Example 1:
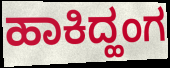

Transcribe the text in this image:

ಹಾಕಿದ್ಹಂಗ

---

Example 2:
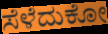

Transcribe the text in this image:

ಸೆಳೆದುಕೋ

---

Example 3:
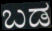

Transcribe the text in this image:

ಬಡ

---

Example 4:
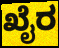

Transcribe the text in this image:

ಖೈರ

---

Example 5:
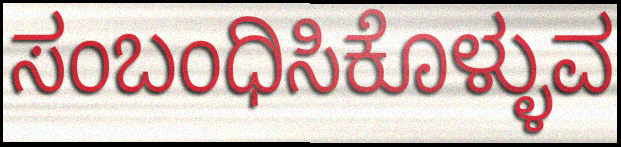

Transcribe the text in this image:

ಸಂಬಂಧಿಸಿಕೊಳ್ಳುವ